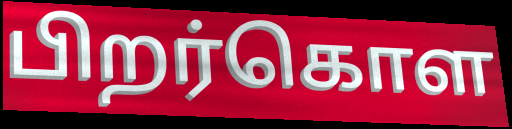
பிறர்கொள